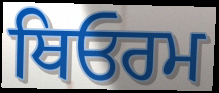
ਥਿਓਰਮ